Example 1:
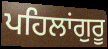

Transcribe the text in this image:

ਪਹਿਲਾਂਗੁਰੂ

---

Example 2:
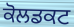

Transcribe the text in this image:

ਕੋਲਡਕਟ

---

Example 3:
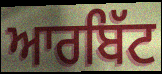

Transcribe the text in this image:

ਆਰਬਿੱਟ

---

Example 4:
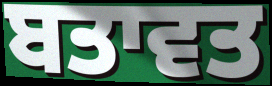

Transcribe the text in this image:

ਬਤਾਵਤ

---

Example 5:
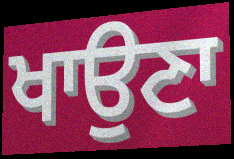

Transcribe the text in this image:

ਖਾਉਣਾ